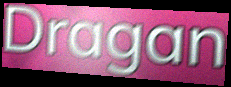
Dragan